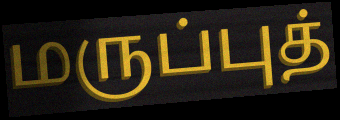
மருப்புத்